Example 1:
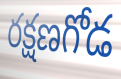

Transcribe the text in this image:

రక్షణగోడ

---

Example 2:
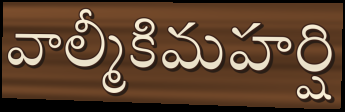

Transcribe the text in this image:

వాల్మీకిమహర్షి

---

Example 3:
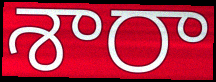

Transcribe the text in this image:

శారా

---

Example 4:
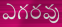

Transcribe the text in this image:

ఎగరవు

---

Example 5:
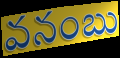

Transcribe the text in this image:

వనంబు